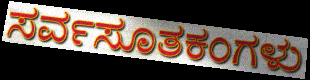
ಸರ್ವಸೂತಕಂಗಳು